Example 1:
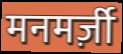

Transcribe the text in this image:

मनमर्ज़ी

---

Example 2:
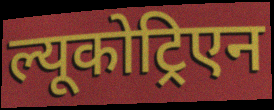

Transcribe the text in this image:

ल्यूकोट्रिएन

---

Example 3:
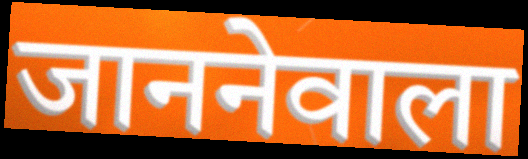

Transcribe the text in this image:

जाननेवाला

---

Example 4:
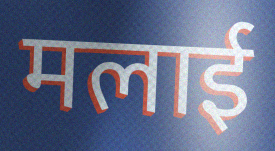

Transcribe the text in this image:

मलाई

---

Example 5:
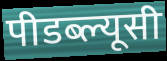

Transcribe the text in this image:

पीडब्ल्यूसी